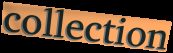
collection